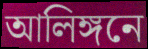
আলিঙ্গনে